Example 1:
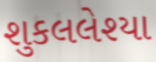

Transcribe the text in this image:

શુકલલેશ્યા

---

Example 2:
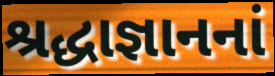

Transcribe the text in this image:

શ્રદ્ધાજ્ઞાનનાં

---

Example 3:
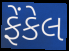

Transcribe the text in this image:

ફેંકેલ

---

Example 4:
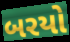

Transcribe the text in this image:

બરયો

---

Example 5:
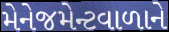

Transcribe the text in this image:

મેનેજમેન્ટવાળાને